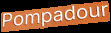
Pompadour